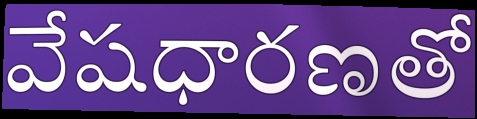
వేషధారణతో